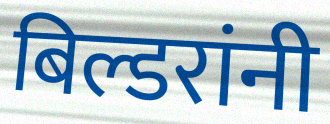
बिल्डरांनी